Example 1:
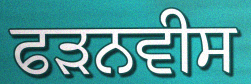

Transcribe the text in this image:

ਫੜਨਵੀਸ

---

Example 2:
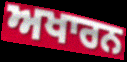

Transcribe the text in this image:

ਅਖਾਰਨ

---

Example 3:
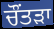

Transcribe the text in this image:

ਚੌਂਤੜਾ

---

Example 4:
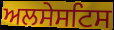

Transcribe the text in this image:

ਅਲਸੇਸਟਿਸ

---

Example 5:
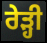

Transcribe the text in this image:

ਰੇੜ੍ਹੀ